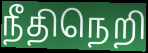
நீதிநெறி